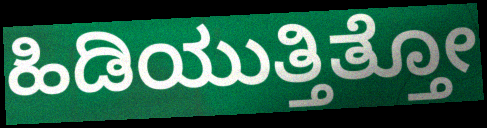
ಹಿಡಿಯುತ್ತಿತ್ತೋ